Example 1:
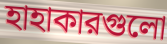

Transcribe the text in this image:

হাহাকারগুলো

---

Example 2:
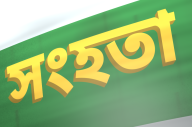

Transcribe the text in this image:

সংহতা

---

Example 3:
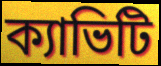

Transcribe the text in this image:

ক্যাভিটি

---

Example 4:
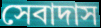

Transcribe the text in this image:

সেবাদাস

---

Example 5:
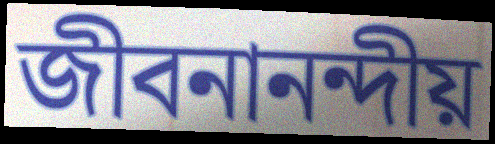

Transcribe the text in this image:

জীবনানন্দীয়